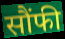
सौंफी